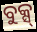
ବୁକ୍ସ୍